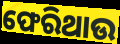
ଫେରିଥାଉ